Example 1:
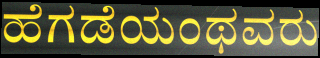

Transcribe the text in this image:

ಹೆಗಡೆಯಂಥವರು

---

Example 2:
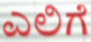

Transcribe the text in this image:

ಎಲಿಗೆ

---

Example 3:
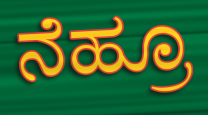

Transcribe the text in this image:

ನೆಹ್ರೂ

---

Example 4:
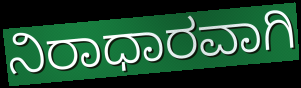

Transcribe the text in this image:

ನಿರಾಧಾರವಾಗಿ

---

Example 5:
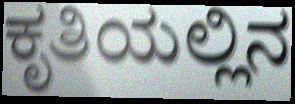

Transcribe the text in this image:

ಕೃತಿಯಲ್ಲಿನ